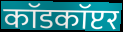
कॉडकॉप्टर